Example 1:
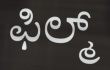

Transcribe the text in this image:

ಫಿಲ್ಮ್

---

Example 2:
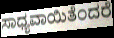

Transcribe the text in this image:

ಸಾಧ್ಯವಾಯಿತೆಂದರೆ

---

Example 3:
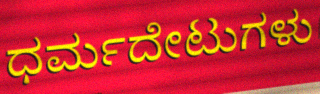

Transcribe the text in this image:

ಧರ್ಮದೇಟುಗಳು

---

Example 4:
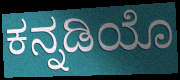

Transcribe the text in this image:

ಕನ್ನಡಿಯೊ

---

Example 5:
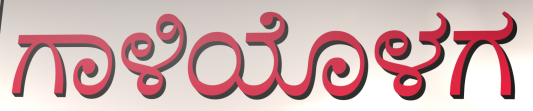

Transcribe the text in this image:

ಗಾಳಿಯೊಳಗ